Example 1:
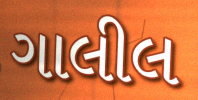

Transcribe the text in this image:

ગાલીલ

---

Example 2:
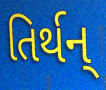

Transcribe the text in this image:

તિર્થન્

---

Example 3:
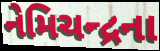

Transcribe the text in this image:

નેમિચન્દ્રના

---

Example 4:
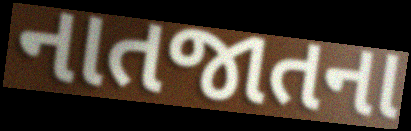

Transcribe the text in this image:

નાતજાતના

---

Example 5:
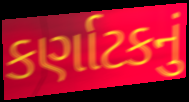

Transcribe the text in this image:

કર્ણાટકનું